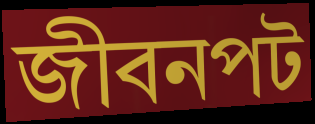
জীবনপট